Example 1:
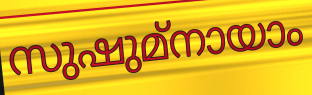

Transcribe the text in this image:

സുഷുമ്നായാം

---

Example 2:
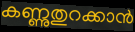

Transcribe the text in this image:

കണ്ണുതുറക്കാൻ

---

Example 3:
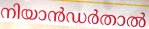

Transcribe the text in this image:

നിയാൻഡർതാൽ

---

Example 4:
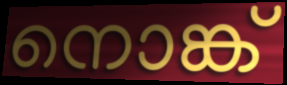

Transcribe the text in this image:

നൊങ്ക്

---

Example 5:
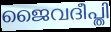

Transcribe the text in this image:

ജൈവദീപ്തി